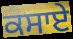
ਕਸਾਏ